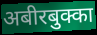
अबीरबुक्का